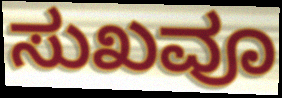
ಸುಖವೂ